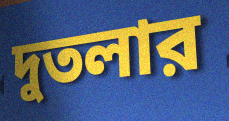
দুতলার